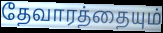
தேவாரத்தையும்